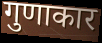
गुणाकार